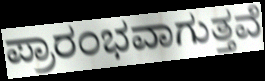
ಪ್ರಾರಂಭವಾಗುತ್ತವೆ